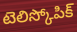
టెలిస్కోపిక్